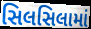
સિલસિલામાં